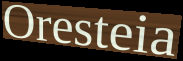
Oresteia